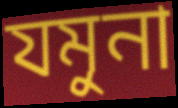
যমুনা